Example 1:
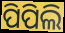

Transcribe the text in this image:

ପିପିଲି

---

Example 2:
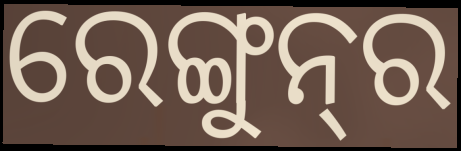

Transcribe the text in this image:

ରେଙ୍ଗୁନ୍‌ର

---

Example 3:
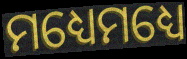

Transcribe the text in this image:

ମଧ୍ୟେମଧ୍ୟେ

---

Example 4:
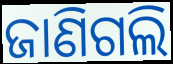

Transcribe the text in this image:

ଜାଣିଗଲି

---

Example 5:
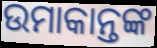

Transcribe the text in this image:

ଉମାକାନ୍ତଙ୍କ